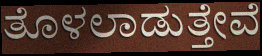
ತೊಳಲಾಡುತ್ತೇವೆ